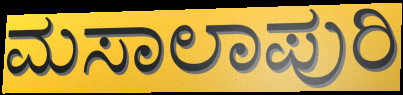
ಮಸಾಲಾಪುರಿ